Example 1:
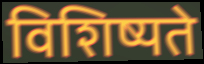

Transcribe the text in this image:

विशिष्यते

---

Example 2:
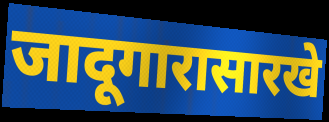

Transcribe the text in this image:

जादूगारासारखे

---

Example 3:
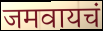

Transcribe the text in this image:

जमवायचं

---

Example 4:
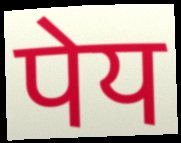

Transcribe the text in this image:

पेय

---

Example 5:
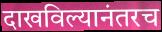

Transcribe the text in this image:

दाखविल्यानंतरच